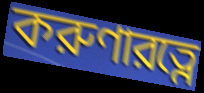
করুণারত্নে